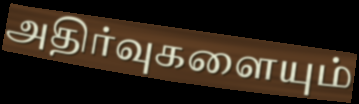
அதிர்வுகளையும்